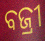
ବଜ୍ରୀ